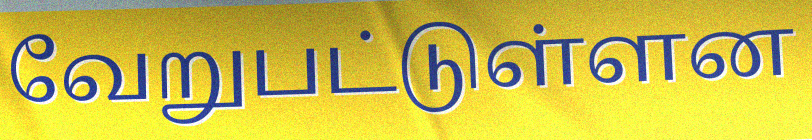
வேறுபட்டுள்ளன